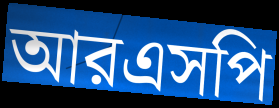
আরএসপি